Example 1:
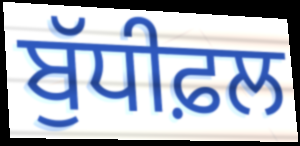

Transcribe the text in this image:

ਬੁੱਧੀਫ਼ਲ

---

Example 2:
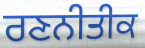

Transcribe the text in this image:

ਰਣਨੀਤੀਕ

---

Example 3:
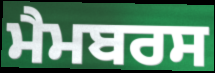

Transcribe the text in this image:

ਮੈਮਬਰਸ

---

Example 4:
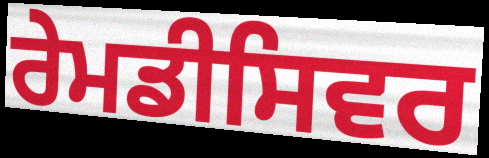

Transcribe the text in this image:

ਰੇਮਡੀਸਿਵਰ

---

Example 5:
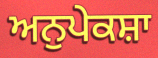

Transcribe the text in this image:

ਅਨੁਪੇਕਸ਼ਾ